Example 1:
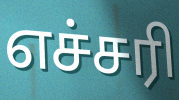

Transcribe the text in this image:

எச்சரி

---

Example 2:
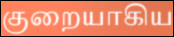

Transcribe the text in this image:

குறையாகிய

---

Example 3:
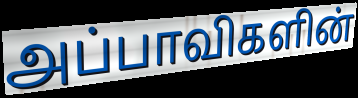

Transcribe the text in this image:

அப்பாவிகளின்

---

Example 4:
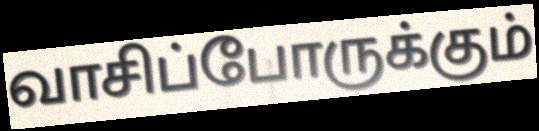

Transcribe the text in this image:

வாசிப்போருக்கும்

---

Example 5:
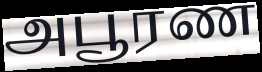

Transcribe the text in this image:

அபூரண